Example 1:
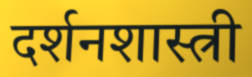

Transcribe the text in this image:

दर्शनशास्त्री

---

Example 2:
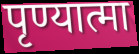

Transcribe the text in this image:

पृण्यात्मा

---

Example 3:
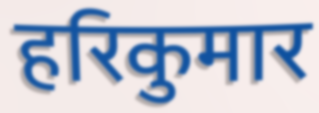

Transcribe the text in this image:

हरिकुमार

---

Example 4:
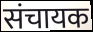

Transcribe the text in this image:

संचायक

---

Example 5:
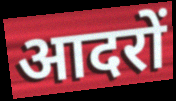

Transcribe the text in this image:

आदरों